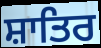
ਸ਼ਾਤਿਰ